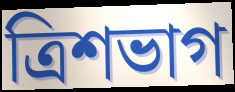
ত্রিশভাগ